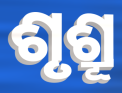
ଶୃଶ୍ରୂ